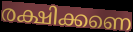
രക്ഷിക്കണെ